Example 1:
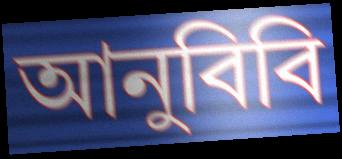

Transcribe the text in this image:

আনুবিবি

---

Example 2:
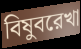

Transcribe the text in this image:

বিষুবরেখা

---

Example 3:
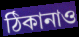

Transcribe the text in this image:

ঠিকানাও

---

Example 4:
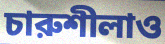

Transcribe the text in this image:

চারুশীলাও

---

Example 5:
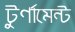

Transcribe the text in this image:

টুর্ণামেন্ট